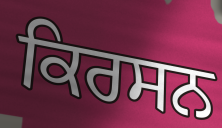
ਕਿਰਸਨ